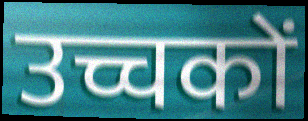
उच्चकों